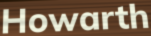
Howarth